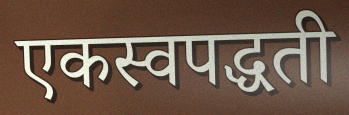
एकस्वपद्धती